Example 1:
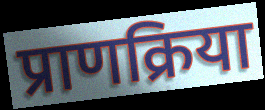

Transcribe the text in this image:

प्राणक्रिया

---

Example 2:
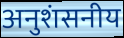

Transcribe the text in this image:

अनुशंसनीय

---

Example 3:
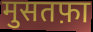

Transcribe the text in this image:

मुसतफ़ा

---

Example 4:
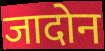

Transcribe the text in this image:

जादोन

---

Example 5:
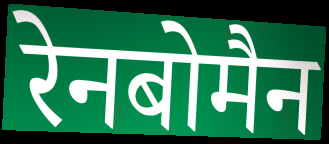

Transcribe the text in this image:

रेनबोमैन